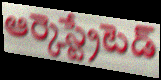
ఆర్కెస్ట్రేటెడ్